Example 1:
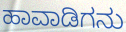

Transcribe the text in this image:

ಹಾವಾಡಿಗನು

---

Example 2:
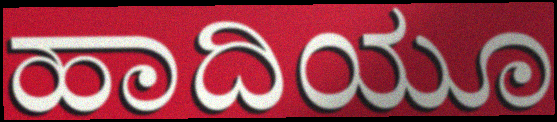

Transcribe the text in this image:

ಹಾದಿಯೂ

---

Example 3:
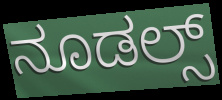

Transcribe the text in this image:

ನೂಡಲ್ಸ್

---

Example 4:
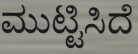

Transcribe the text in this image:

ಮುಟ್ಟಿಸಿದೆ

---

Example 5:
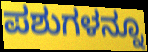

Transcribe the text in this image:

ಪಶುಗಳನ್ನೂ